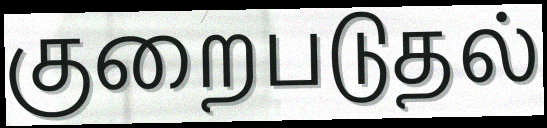
குறைபடுதல்